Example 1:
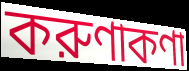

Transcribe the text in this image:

করুণাকণা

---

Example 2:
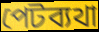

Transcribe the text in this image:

পেটব্যথা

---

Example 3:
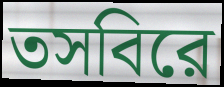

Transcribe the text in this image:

তসবিরে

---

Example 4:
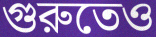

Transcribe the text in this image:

গুরুতেও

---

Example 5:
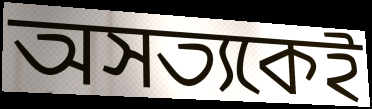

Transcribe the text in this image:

অসত্যকেই